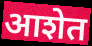
आशेत